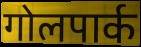
गोलपार्क